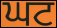
ਘਟ